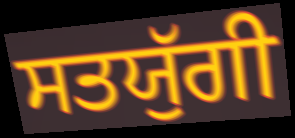
ਸਤਯੁੱਗੀ